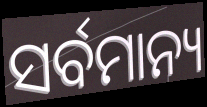
ସର୍ବମାନ୍ୟ